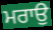
ਮਰਾਉ